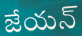
జేయన్